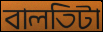
বালতিটা